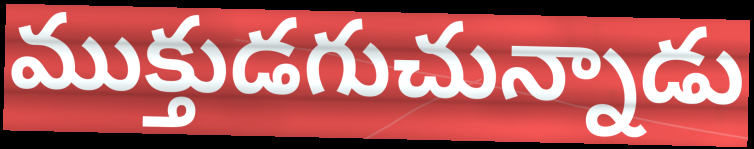
ముక్తుడగుచున్నాడు